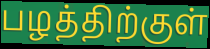
பழத்திற்குள்